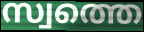
സ്വത്തെ